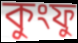
কুংফু